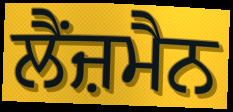
ਲੈਂਜ਼ਮੈਨ